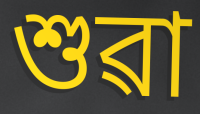
শুৱা